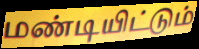
மண்டியிட்டும்